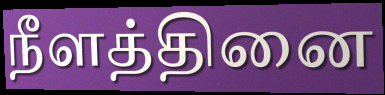
நீளத்தினை